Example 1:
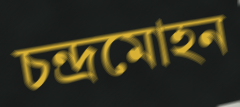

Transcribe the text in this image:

চন্দ্রমোহন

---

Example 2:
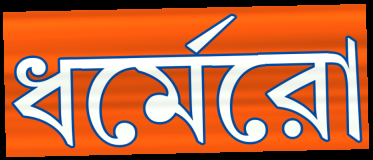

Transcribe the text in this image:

ধর্মেরো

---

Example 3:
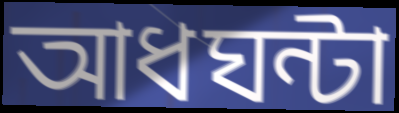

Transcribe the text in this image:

আধঘন্টা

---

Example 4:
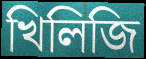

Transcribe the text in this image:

খিলিজি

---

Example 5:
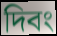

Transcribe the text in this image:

দিবং